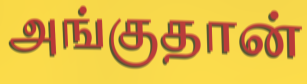
அங்குதான்